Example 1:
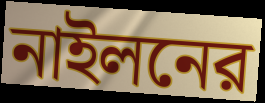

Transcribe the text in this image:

নাইলনের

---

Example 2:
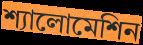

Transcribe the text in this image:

শ্যালোমেশিন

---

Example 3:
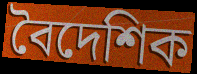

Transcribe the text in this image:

বৈদেশিক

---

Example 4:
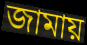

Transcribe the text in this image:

জামায়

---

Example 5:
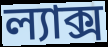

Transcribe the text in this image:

ল্যাক্স